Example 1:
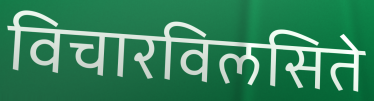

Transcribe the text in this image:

विचारविलसिते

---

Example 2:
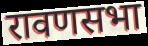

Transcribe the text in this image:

रावणसभा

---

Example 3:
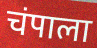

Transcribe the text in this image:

चंपाला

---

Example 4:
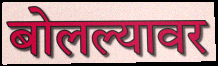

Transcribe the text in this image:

बोलल्यावर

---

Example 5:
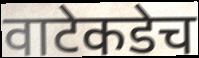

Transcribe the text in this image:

वाटेकडेच